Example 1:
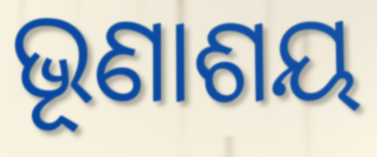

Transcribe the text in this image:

ଭୂଣାଶୟ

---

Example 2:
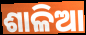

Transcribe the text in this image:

ଶାଳିଆ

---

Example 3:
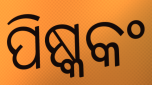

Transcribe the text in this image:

ପିଷ୍କକଂ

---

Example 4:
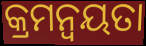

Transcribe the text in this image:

କ୍ରମନ୍ବୟତା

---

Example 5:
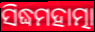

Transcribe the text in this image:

ସିଦ୍ଧମହାତ୍ମା